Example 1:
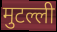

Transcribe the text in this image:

मुटल्ली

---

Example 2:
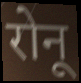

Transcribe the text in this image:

रोनू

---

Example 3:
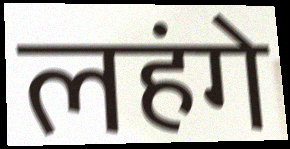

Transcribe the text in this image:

लहंगे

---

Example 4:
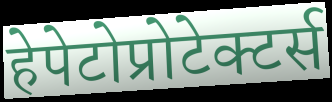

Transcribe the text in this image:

हेपेटोप्रोटेक्टर्स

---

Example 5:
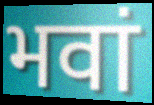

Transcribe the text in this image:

भवां